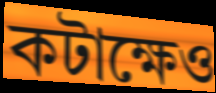
কটাক্ষেও